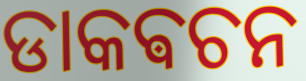
ଡାକଵଚନ